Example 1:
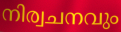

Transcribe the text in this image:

നിര്വചനവും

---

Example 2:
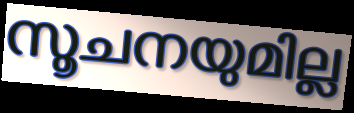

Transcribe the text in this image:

സൂചനയുമില്ല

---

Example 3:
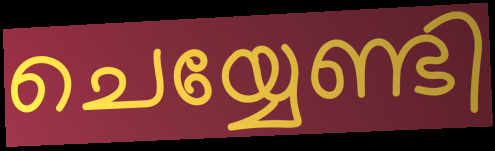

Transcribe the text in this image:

ചെയ്യേണ്ടി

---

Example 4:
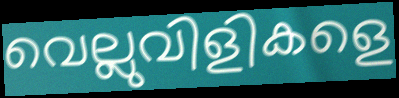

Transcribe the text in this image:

വെല്ലുവിളികളെ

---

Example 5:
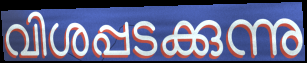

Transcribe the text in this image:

വിശപ്പടക്കുന്നു